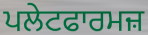
ਪਲੇਟਫਾਰਮਜ਼